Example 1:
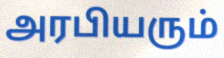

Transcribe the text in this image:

அரபியரும்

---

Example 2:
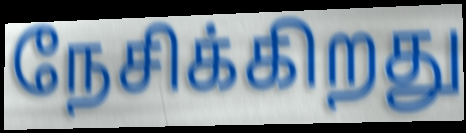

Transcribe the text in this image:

நேசிக்கிறது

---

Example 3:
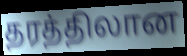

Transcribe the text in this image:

தரத்திலான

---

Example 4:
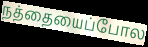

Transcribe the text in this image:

நத்தையைப்போல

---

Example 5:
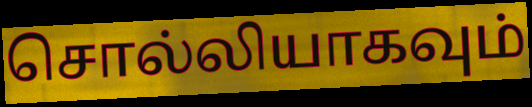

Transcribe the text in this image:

சொல்லியாகவும்